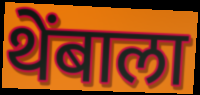
थेंबाला